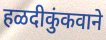
हळदीकुंकवाने